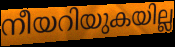
നീയറിയുകയില്ല